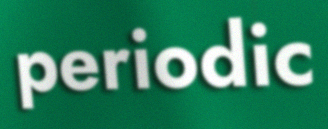
periodic